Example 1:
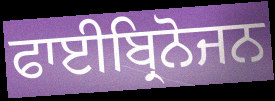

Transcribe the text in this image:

ਫਾਈਬ੍ਰਿਨੋਜਨ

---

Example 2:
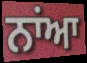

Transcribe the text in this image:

ਨਾਂਆ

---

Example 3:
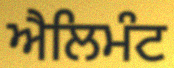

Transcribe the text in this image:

ਐਲਿਮੰਟ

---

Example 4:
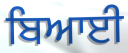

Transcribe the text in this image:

ਬਿਆਈ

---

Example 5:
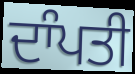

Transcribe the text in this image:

ਦਾੰਪਤੀ